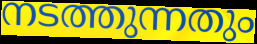
നടത്തുന്നതും